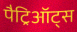
पैट्रिऑट्स